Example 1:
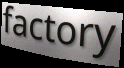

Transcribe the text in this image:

factory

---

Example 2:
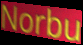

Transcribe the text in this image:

Norbu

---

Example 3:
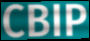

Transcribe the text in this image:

CBIP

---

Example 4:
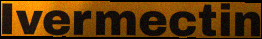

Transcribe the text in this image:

Ivermectin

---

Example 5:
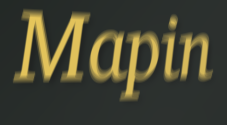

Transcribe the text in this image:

Mapin